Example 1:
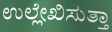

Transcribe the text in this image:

ಉಲ್ಲೇಖಿಸುತ್ತಾ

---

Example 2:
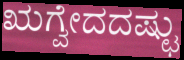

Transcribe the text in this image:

ಋಗ್ವೇದದಷ್ಟು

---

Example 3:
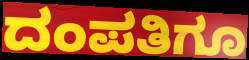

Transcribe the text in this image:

ದಂಪತಿಗೂ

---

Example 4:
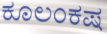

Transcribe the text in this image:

ಕೂಲಂಕಷ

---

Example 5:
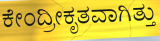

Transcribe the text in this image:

ಕೇಂದ್ರೀಕೃತವಾಗಿತ್ತು